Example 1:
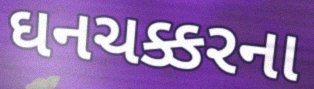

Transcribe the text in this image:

ઘનચક્કરના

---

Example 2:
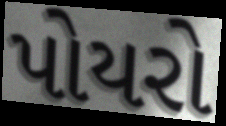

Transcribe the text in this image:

પોયરો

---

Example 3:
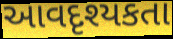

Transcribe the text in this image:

આવદૃશ્યકતા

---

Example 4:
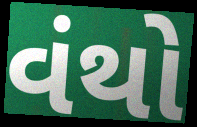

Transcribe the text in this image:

વંથો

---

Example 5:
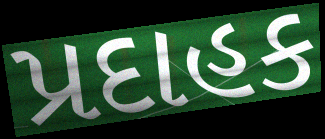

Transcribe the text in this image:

પ્રદાહક